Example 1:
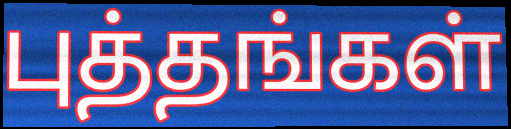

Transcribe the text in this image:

புத்தங்கள்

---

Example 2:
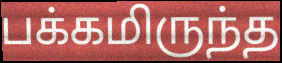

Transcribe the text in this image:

பக்கமிருந்த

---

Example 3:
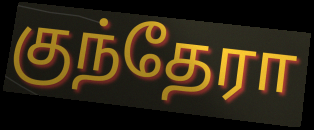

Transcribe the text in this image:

குந்தேரா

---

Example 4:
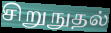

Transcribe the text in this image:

சிறுநுதல்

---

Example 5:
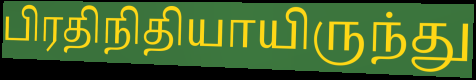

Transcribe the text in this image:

பிரதிநிதியாயிருந்து